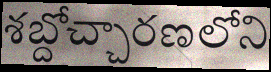
శబ్దోచ్చారణలోని